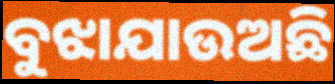
ବୁଝାଯାଉଅଛି